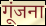
गूंजना